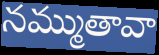
నమ్ముతావా